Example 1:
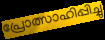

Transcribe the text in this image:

പ്രോത്സാഹിപ്പിച്ചു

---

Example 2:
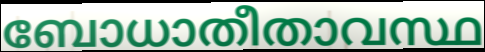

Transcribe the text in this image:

ബോധാതീതാവസ്ഥ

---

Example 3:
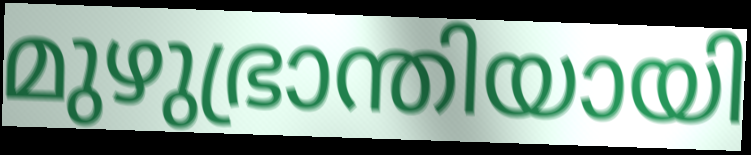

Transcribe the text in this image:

മുഴുഭ്രാന്തിയായി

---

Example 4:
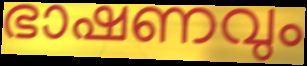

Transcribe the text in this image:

ഭാഷണവും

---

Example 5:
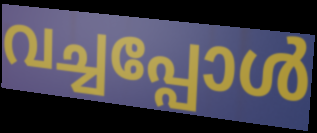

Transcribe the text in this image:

വച്ചപ്പോൾ